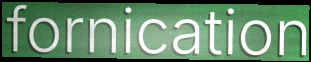
fornication